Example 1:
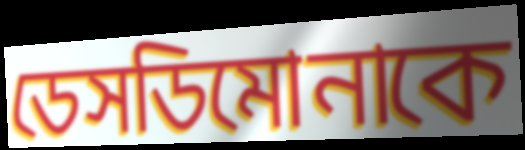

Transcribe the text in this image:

ডেসডিমোনাকে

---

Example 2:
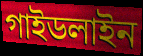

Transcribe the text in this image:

গাইডলাইন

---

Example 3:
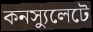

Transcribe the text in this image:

কনস্যুলেটে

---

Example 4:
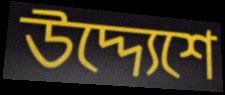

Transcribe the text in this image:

উদ্দ্যেশে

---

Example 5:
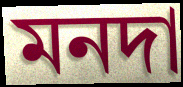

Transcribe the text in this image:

মনদা